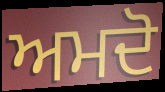
ਅਮਦੋ